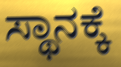
ಸ್ಥಾನಕ್ಕೆ